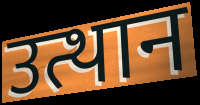
उत्थान